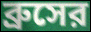
ব্রুসের